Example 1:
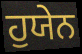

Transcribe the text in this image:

ਹੁਯੇਨ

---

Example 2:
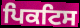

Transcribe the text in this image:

ਪਿਕਟਿਸ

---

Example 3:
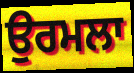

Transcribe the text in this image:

ਉਰਮਲਾ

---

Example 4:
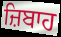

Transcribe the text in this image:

ਜ਼ਿਬਾਹ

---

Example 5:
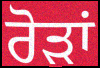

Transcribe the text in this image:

ਰੋੜਾਂ